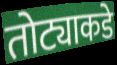
तोट्याकडे